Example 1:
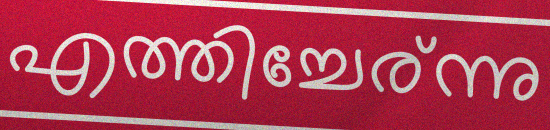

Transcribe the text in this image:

എത്തിച്ചേര്ന്നു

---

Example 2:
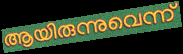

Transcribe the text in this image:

ആയിരുന്നുവെന്ന്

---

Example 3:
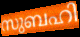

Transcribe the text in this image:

സുബഹി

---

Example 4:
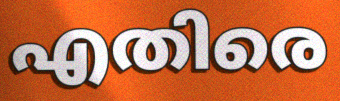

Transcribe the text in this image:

എതിരെ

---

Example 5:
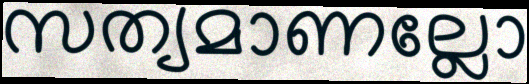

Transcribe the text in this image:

സത്യമാണല്ലോ